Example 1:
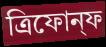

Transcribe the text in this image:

ত্রিফোন্ফ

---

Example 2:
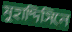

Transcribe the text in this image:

মুহাদ্দিসিনে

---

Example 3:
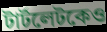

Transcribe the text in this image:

টার্টলেটকেও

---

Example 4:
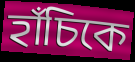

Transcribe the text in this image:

হাঁচিকে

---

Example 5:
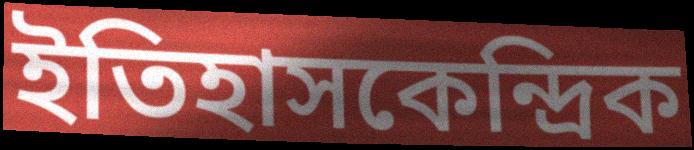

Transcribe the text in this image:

ইতিহাসকেন্দ্রিক